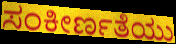
ಸಂಕೀರ್ಣತೆಯು